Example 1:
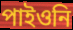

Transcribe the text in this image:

পাইওনি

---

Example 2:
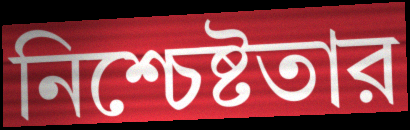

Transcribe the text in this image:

নিশ্চেষ্টতার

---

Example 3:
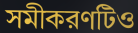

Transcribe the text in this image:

সমীকরণটিও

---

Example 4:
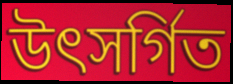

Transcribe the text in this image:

উৎসর্গিত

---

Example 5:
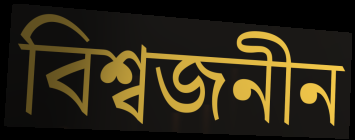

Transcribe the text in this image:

বিশ্বজনীন